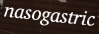
nasogastric